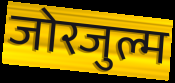
जोरजुल्म